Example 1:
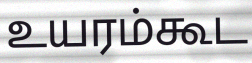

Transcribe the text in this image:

உயரம்கூட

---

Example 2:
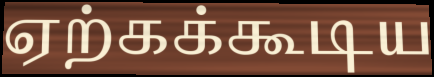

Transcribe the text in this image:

ஏற்கக்கூடிய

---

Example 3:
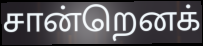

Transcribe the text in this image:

சான்றெனக்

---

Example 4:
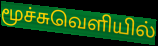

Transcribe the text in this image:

மூச்சுவெளியில்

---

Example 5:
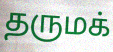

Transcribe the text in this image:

தருமக்